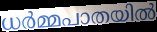
ധർമ്മപാതയിൽ